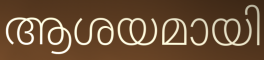
ആശയമായി